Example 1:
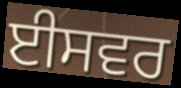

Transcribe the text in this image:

ਈਸਵਰ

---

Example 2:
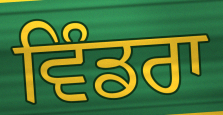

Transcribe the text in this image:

ਵਿੰਡਰਾ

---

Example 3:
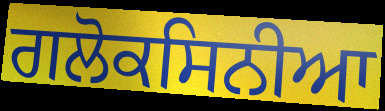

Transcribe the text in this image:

ਗਲੋਕਸਿਨੀਆ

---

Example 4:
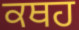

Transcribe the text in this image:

ਕਥਹ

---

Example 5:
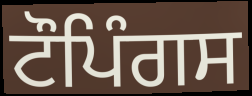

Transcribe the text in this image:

ਟੌਪਿੰਗਸ